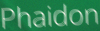
Phaidon